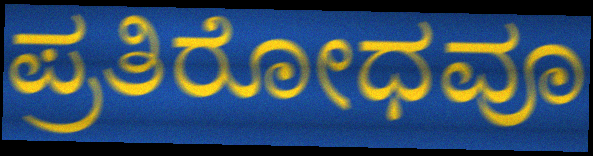
ಪ್ರತಿರೋಧವೂ